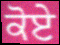
ਕੋਏ